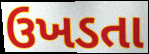
ઉખડતા